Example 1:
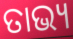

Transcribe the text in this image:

ତାଭ୍ୟ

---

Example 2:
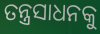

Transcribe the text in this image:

ତନ୍ତ୍ରସାଧନକୁ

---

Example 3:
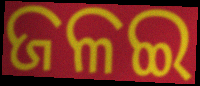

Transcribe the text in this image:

ଜଳଇ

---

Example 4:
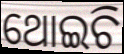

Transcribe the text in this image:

ଥୋଇଚି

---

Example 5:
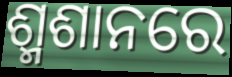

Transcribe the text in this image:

ଶ୍ମଶାନରେ